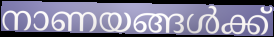
നാണയങ്ങൾക്ക്